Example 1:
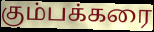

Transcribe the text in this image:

கும்பக்கரை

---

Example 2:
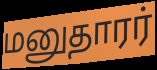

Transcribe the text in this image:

மனுதாரர்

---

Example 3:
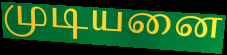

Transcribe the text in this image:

முடியனை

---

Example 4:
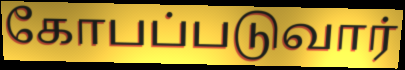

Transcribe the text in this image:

கோபப்படுவார்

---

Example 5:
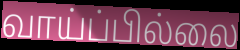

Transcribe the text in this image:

வாய்ப்பில்லை